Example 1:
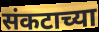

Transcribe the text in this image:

संकटाच्या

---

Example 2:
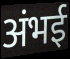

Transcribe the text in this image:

अंभई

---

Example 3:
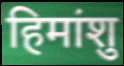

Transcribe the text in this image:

हिमांशु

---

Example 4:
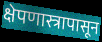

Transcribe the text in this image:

क्षेपणास्त्रापासून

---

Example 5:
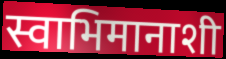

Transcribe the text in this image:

स्वाभिमानाशी